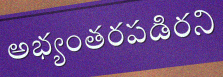
అభ్యంతరపడిరని